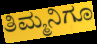
ತಿಮ್ಮನಿಗೂ